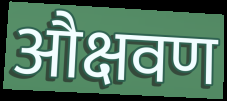
औक्षवण